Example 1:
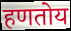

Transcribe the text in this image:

हणतोय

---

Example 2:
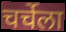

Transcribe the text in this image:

चर्चेला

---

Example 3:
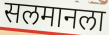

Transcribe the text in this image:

सलमानला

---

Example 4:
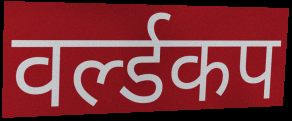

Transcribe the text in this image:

वर्ल्डकप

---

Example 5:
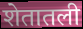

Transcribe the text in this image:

शेतातली